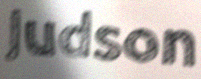
Judson